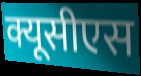
क्यूसीएस